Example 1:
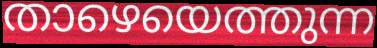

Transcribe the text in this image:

താഴെയെത്തുന്ന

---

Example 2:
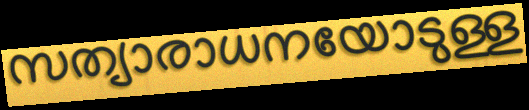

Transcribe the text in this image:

സത്യാരാധനയോടുള്ള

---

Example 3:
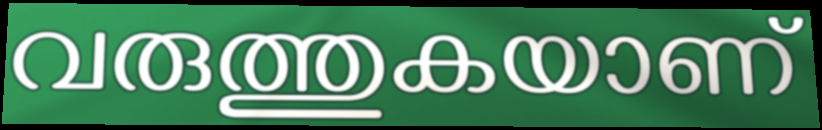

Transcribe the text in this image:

വരുത്തുകയാണ്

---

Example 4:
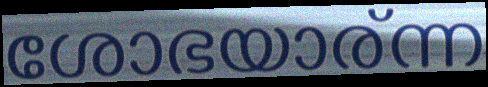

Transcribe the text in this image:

ശോഭയാര്ന്ന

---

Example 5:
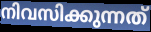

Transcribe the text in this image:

നിവസിക്കുന്നത്